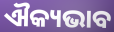
ଐକ୍ୟଭାବ